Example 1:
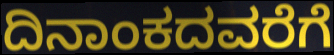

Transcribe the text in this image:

ದಿನಾಂಕದವರೆಗೆ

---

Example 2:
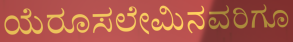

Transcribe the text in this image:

ಯೆರೂಸಲೇಮಿನವರಿಗೂ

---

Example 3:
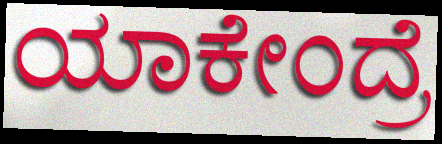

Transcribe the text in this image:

ಯಾಕೇಂದ್ರೆ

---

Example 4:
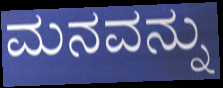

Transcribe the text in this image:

ಮನವನ್ನು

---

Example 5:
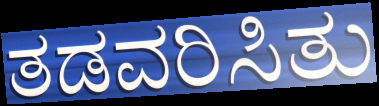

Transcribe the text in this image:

ತಡವರಿಸಿತು